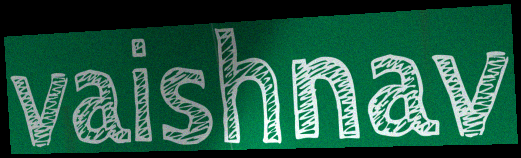
vaishnav